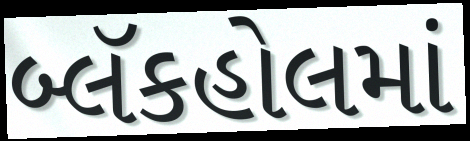
બ્લૅકહોલમાં